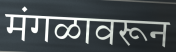
मंगळावरून